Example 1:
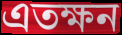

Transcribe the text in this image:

এতক্ষন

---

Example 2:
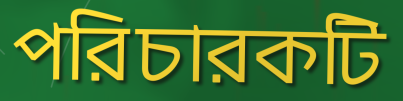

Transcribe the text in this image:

পরিচারকটি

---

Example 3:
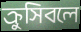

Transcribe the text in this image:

ক্রুসিবলে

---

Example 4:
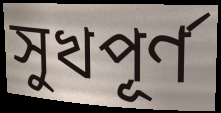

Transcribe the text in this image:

সুখপূর্ণ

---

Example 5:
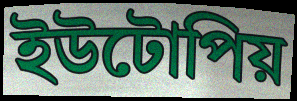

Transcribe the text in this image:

ইউটোপিয়